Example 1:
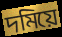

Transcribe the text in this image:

দমিয়ে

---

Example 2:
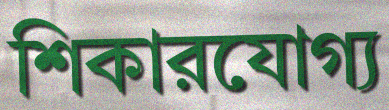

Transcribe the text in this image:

শিকারযোগ্য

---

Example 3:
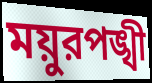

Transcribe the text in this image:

ময়ুরপঙ্খী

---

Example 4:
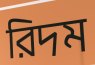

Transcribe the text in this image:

রিদম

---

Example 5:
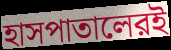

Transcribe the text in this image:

হাসপাতালেরই